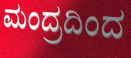
ಮಂದ್ರದಿಂದ